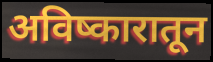
अविष्कारातून